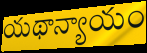
యథాన్యాయం